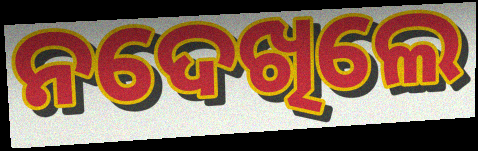
ନଦେଖିଲେ